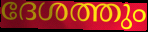
ദേശത്തും